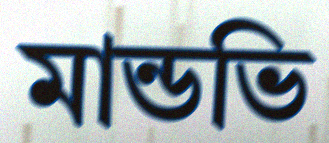
মান্ডভি